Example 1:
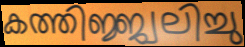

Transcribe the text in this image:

കത്തിജ്ജ്വലിച്ചു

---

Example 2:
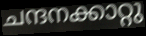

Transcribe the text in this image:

ചന്ദനക്കാറ്റു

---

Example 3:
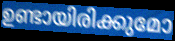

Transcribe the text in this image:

ഉണ്ടായിരിക്കുമോ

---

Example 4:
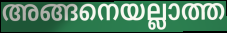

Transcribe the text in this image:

അങ്ങനെയല്ലാത്ത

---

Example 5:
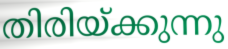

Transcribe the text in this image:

തിരിയ്ക്കുന്നു